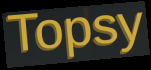
Topsy